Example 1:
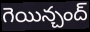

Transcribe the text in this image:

గెయిన్చంద్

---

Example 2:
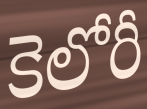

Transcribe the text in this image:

కెలోరీ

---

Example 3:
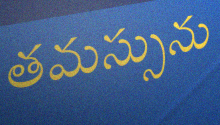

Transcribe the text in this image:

తమస్సును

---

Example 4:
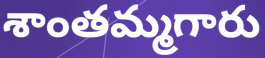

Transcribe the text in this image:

శాంతమ్మగారు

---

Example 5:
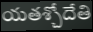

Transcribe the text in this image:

యతశ్చోదేతి